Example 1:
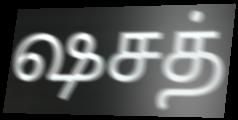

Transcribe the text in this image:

ஷசத்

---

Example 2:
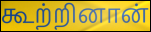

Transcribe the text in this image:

கூற்றினான்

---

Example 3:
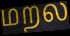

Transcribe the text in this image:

மறல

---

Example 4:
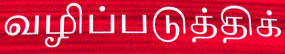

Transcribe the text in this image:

வழிப்படுத்திக்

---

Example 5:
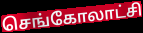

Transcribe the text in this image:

செங்கோலாட்சி